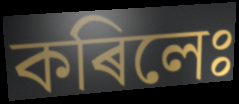
কৰিলেঃ